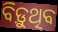
ବିଡ଼ୁଥିବ